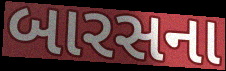
બારસના